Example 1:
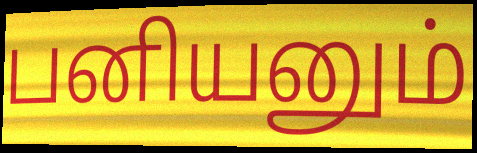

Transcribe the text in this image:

பனியனும்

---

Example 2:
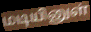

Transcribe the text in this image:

மடியினுள்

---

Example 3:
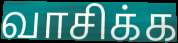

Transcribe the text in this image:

வாசிக்க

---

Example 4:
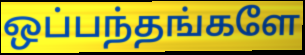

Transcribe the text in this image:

ஒப்பந்தங்களே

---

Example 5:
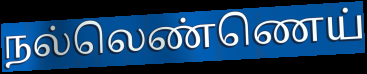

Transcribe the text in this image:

நல்லெண்ணெய்